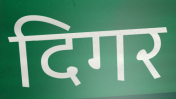
दिगर